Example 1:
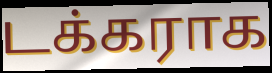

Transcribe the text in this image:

டக்கராக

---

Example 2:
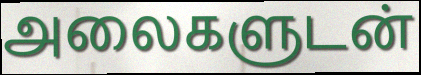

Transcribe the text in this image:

அலைகளுடன்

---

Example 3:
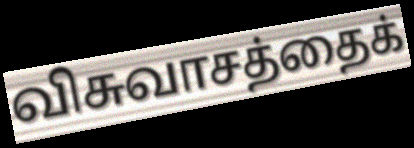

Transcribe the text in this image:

விசுவாசத்தைக்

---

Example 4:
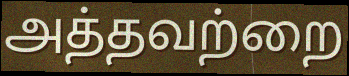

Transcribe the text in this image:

அத்தவற்றை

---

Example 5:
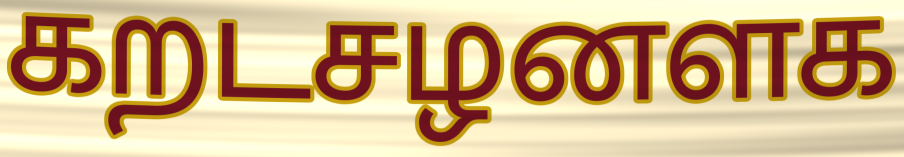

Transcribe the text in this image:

கறடசழனளக